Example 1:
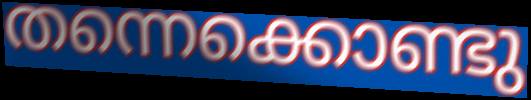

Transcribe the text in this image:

തന്നെക്കൊണ്ടു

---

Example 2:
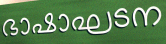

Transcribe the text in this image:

ഭാഷാഘടന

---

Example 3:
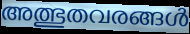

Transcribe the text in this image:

അത്ഭുതവരങ്ങൾ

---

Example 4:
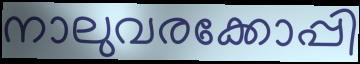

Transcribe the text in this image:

നാലുവരക്കോപ്പി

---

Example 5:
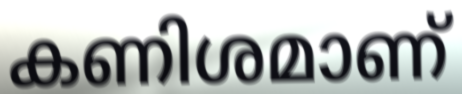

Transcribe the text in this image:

കണിശമാണ്